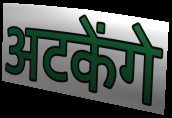
अटकेंगे